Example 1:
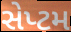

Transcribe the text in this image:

સેપ્ટમ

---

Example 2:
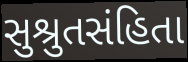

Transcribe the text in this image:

સુશ્રુતસંહિતા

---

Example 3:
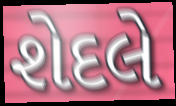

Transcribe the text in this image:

શેદલે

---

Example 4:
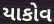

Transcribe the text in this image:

યાકોવ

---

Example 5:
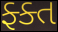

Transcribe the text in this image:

ફ્ક્ત